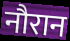
नौरान